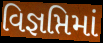
વિજ્ઞપ્તિમાં